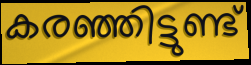
കരഞ്ഞിട്ടുണ്ട്